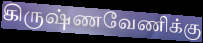
கிருஷ்ணவேணிக்கு